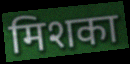
मिशका